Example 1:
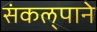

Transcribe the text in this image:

संकल्पाने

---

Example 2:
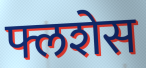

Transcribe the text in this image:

फ्लशेस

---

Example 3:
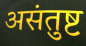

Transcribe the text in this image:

असंतुष्ट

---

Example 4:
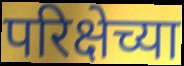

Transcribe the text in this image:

परिक्षेच्या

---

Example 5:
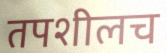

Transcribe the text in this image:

तपशीलच